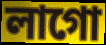
লাগো